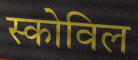
स्कोविल